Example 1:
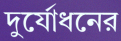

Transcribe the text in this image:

দুর্যোধনের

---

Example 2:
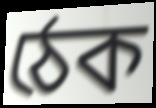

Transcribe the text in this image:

ঠেক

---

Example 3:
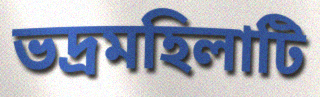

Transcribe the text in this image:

ভদ্রমহিলাটি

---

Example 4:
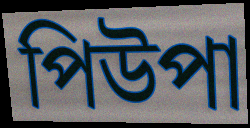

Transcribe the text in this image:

পিউপা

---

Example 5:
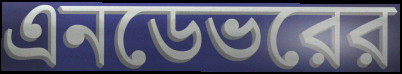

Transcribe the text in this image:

এনডেভরের